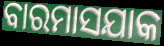
ବାରମାସଯାକ